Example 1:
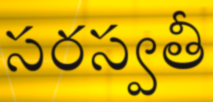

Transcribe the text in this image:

సరస్వతీ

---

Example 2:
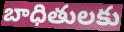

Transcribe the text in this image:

బాధితులకు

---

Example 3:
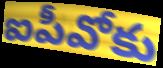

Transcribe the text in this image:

ఐపీవోకు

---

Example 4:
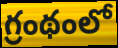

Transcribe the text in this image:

గ్రంథంలో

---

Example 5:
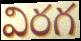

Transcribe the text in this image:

విరగ